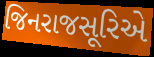
જિનરાજસૂરિએ